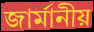
জার্মানীয়